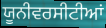
ਯੂਨੀਵਰਸੀਟੀਆਂ